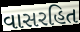
વાસરહિત